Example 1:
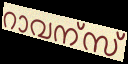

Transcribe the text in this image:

റാവന്സ്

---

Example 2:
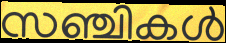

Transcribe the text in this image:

സഞ്ചികൾ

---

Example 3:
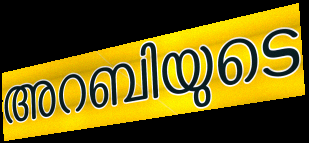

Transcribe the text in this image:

അറബിയുടെ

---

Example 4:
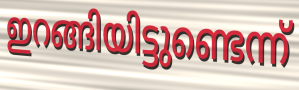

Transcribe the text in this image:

ഇറങ്ങിയിട്ടുണ്ടെന്ന്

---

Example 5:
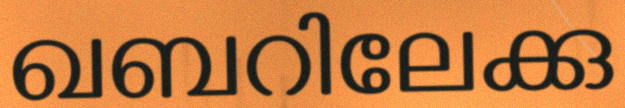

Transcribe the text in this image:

ഖബറിലേക്കു